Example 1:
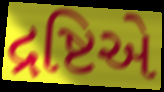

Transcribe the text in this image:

દ્રષ્ટિએ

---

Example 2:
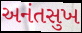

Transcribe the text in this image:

અનંતસુખ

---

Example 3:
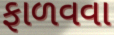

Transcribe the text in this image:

ફાળવવા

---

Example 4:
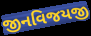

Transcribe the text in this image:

જીનવિજયજી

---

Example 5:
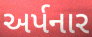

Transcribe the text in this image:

અર્પનાર